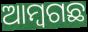
ଆମ୍ବଗଛ